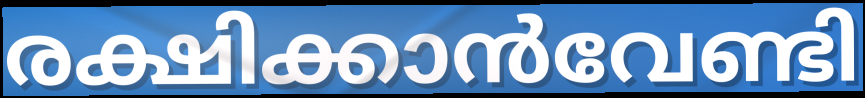
രക്ഷിക്കാൻവേണ്ടി